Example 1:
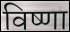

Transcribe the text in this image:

विष्णा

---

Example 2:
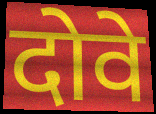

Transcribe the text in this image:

दोवे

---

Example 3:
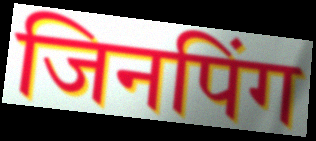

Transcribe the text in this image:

जिनपिंग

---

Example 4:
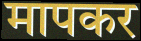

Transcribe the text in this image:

मापकर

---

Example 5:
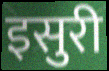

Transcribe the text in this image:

इसुरी